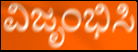
ವಿಜೃಂಭಿಸಿ